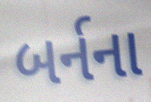
બર્નના